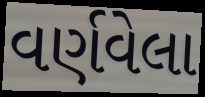
વર્ણવેલા